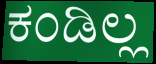
ಕಂಡಿಲ್ಲ